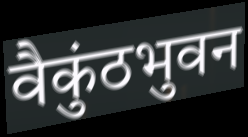
वैकुंठभुवन